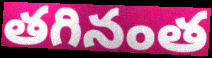
తగినంత